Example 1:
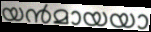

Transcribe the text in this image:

യൻമായയാ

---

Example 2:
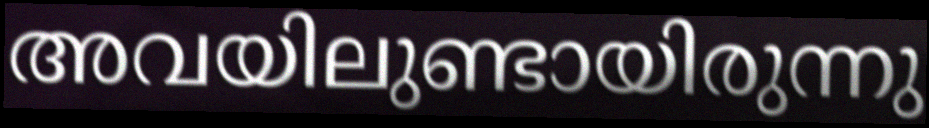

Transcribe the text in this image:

അവയിലുണ്ടായിരുന്നു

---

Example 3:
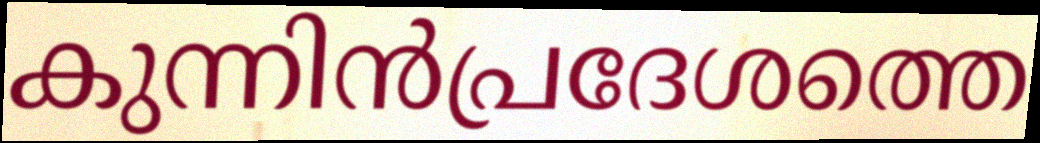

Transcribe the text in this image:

കുന്നിൻപ്രദേശത്തെ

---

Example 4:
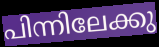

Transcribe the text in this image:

പിന്നിലേക്കു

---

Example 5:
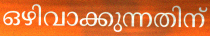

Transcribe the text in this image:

ഒഴിവാക്കുന്നതിന്